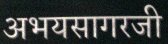
अभयसागरजी